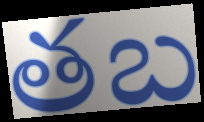
తబ